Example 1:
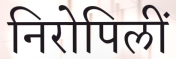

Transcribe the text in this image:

निरोपिलीं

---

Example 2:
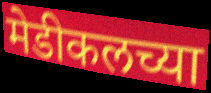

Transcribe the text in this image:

मेडीकलच्या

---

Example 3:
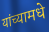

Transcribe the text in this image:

यांच्यामधे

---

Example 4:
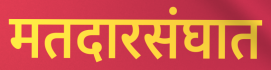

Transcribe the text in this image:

मतदारसंघात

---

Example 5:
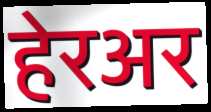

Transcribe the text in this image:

हेरअर